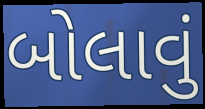
બોલાવું